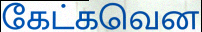
கேட்கவென